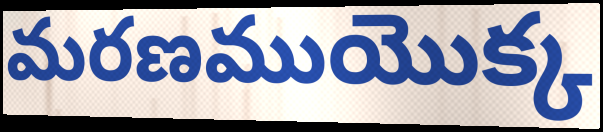
మరణముయొక్క